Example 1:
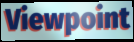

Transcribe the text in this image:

Viewpoint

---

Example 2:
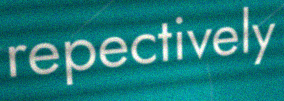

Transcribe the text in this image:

repectively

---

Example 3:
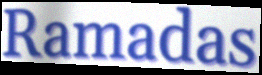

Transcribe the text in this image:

Ramadas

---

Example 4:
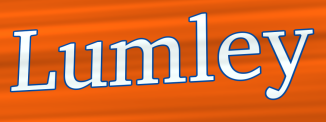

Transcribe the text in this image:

Lumley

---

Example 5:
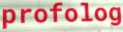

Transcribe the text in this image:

profolog